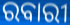
ରବାରୀ